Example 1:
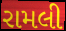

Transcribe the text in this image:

રામલી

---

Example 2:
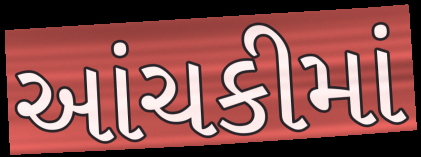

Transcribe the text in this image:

આંચકીમાં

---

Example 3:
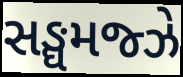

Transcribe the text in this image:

સઙ્ઘમજ્ઝે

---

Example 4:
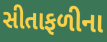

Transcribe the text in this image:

સીતાફળીના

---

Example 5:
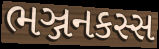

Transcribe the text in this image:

ભઞ્જનકસ્સ